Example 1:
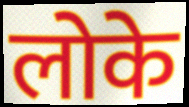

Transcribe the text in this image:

लोके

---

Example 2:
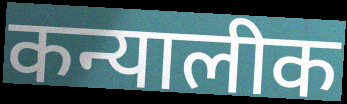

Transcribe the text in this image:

कन्यालीक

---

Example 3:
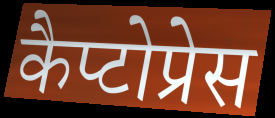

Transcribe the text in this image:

कैप्टोप्रेस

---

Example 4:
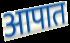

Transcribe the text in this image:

आपात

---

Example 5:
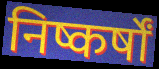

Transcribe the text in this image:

निष्कर्षों